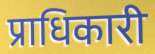
प्राधिकारी